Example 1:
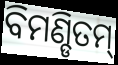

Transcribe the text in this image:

ବିମଣ୍ଡିତମ୍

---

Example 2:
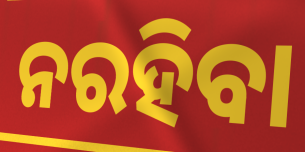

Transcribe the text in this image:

ନରହିବା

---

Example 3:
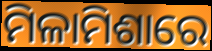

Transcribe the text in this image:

ମିଳାମିଶାରେ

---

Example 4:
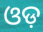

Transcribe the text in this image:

ଓଡ଼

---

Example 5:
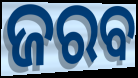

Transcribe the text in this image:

ଜରବ